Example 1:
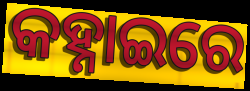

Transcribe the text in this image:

କହ୍ନାଇରେ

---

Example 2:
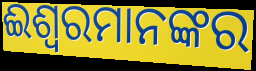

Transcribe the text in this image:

ଈଶ୍ୱରମାନଙ୍କର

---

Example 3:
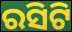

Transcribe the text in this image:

ରସିଟି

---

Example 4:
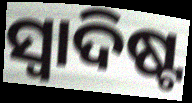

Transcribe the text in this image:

ସ୍ବାଦିଷ୍ଟ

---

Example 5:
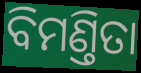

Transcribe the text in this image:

ବିମଣ୍ତିତା